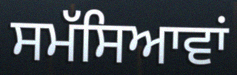
ਸਮੱਸਿਆਵਾਂ